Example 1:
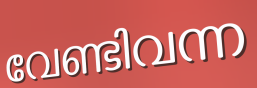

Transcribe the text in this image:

വേണ്ടിവന്ന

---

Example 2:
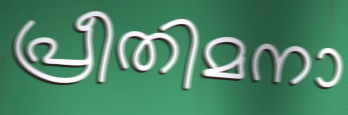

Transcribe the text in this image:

പ്രീതിമനാ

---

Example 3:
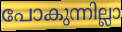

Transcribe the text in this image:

പോകുന്നില്ലാ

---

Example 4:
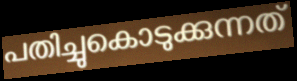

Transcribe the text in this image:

പതിച്ചുകൊടുക്കുന്നത്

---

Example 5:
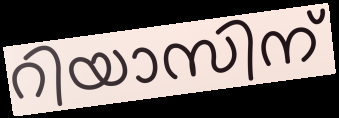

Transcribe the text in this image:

റിയാസിന്